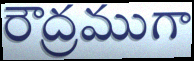
రౌద్రముగా